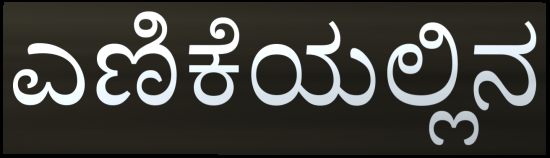
ಎಣಿಕೆಯಲ್ಲಿನ